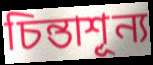
চিন্তাশূন্য